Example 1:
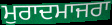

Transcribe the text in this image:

ਮੁਰਾਦਮਾਜਰਾ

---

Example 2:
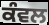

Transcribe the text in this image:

ਕੰਵਲ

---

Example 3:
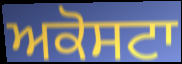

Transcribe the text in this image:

ਅਕੋਸਟਾ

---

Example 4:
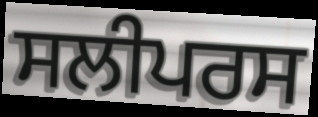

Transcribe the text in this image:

ਸਲੀਪਰਸ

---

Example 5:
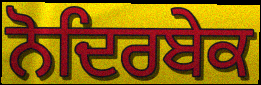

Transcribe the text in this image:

ਨੋਦਿਰਬੇਕ